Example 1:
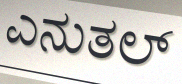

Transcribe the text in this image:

ಎನುತಲ್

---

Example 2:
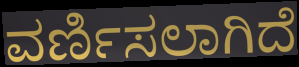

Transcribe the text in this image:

ವರ್ಣಿಸಲಾಗಿದೆ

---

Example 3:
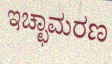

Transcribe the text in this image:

ಇಚ್ಛಾಮರಣ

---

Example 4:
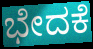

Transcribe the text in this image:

ಭೇದಕೆ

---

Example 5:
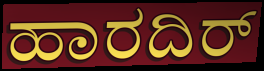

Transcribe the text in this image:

ಹಾರದಿರ್